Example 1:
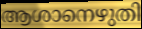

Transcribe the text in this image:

ആശാനെഴുതി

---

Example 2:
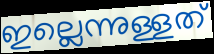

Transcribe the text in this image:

ഇല്ലെന്നുള്ളത്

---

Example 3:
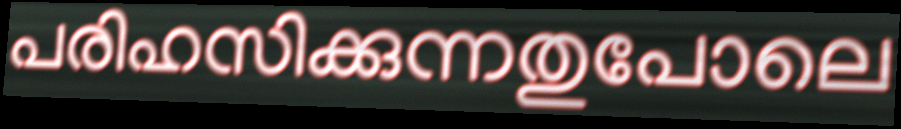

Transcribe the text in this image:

പരിഹസിക്കുന്നതുപോലെ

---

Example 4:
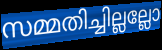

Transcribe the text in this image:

സമ്മതിച്ചില്ലല്ലോ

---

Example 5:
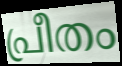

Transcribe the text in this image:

പ്രീതം